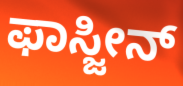
ಫಾಸ್ಜೀನ್